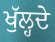
ਖੁੱਲ੍ਹਦੇ